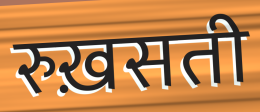
रुख़सती